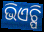
ଭିଏଚ୍ପି